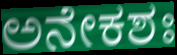
ಅನೇಕಶಃ